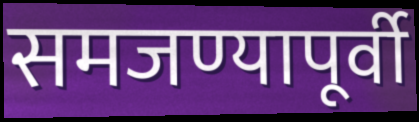
समजण्यापूर्वी